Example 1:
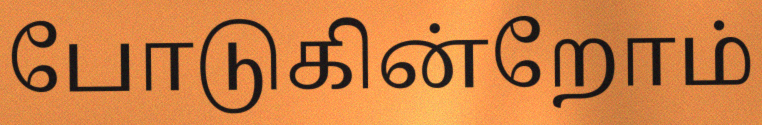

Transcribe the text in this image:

போடுகின்றோம்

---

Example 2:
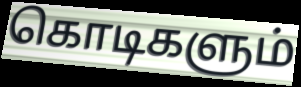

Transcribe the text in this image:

கொடிகளும்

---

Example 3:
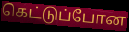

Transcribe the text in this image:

கெட்டுப்போன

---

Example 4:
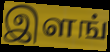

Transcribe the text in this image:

இளங்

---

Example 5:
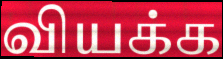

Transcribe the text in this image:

வியக்க